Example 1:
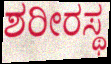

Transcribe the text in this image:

ಶರೀರಸ್ಥ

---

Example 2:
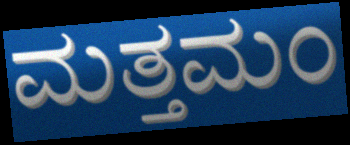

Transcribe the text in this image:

ಮತ್ತಮಂ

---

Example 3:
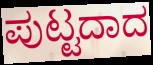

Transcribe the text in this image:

ಪುಟ್ಟದಾದ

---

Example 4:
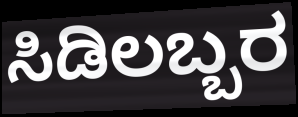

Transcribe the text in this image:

ಸಿಡಿಲಬ್ಬರ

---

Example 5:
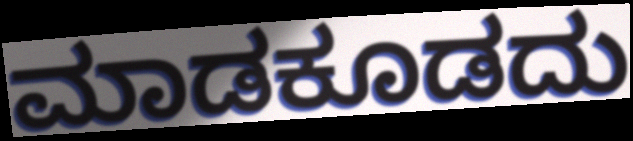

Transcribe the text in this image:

ಮಾಡಕೂಡದು